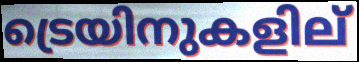
ട്രെയിനുകളില്